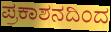
ಪ್ರಕಾಶನದಿಂದ